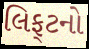
લિફ્‌ટનો